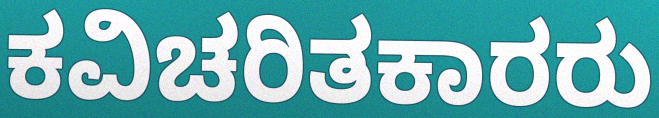
ಕವಿಚರಿತಕಾರರು